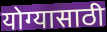
योग्यासाठी